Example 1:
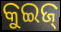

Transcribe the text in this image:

କୁଇଜ୍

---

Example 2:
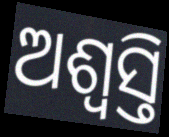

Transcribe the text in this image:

ଅଶ୍ୱସ୍ତି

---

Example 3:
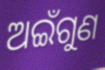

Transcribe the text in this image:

ଅଇଁଗୁଣ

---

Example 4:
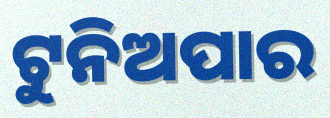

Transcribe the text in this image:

ଟୁନିଅପାର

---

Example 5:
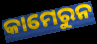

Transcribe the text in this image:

କାମେରୁନ